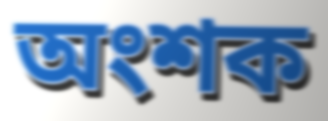
অংশক